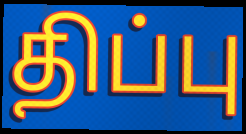
திப்பு